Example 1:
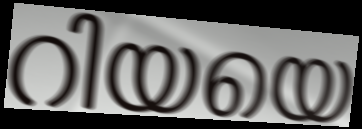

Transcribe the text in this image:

റിയയെ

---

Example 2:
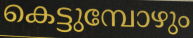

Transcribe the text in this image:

കെട്ടുമ്പോഴും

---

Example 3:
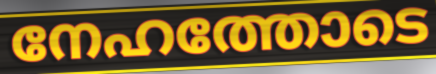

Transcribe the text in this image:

നേഹത്തോടെ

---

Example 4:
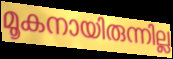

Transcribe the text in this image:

മൂകനായിരുന്നില്ല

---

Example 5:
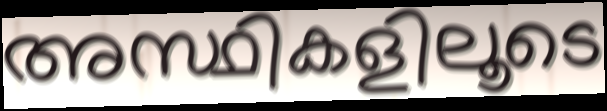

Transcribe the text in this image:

അസ്ഥികളിലൂടെ